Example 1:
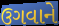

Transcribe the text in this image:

ઉગવાને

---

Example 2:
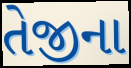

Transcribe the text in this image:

તેજીના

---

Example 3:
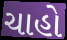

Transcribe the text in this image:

ચાહો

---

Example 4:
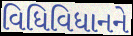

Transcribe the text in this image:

વિધિવિધાનને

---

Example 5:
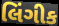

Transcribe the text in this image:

લિંગીક